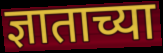
ज्ञाताच्या